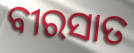
ବୀରସାତ